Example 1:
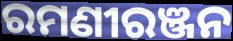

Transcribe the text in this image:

ରମଣୀରଞ୍ଜନ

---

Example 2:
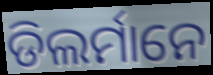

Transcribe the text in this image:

ଡିଲର୍ମାନେ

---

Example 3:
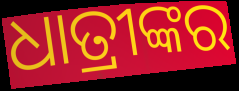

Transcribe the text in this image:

ଧାତ୍ରୀଙ୍କର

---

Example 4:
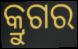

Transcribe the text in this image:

କ୍ରୁଗର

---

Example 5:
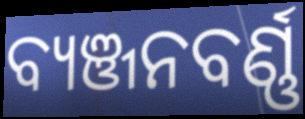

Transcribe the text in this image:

ବ୍ୟଞ୍ଜନବର୍ଣ୍ଣ